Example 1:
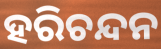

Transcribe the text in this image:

ହରିଚନ୍ଦନ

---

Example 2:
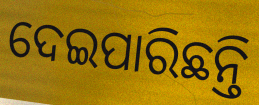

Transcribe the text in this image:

ଦେଇପାରିଛନ୍ତି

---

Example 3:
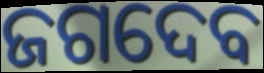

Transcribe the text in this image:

ଜଗଦେବ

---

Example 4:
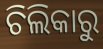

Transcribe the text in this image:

ଚିଲିକାରୁ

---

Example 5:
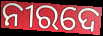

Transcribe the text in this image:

ନୀରଦେ